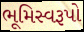
ભૂમિસ્વરૂપો